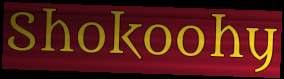
Shokoohy